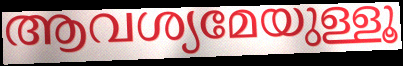
ആവശ്യമേയുള്ളൂ